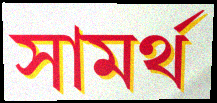
সামৰ্থ